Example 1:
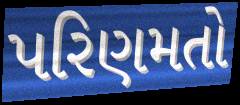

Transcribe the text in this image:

પરિણમતો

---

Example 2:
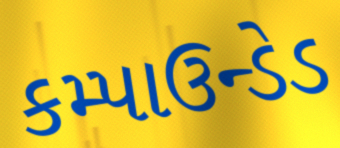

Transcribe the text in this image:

કમ્પાઉન્ડેડ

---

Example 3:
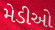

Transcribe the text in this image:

મેડીઓ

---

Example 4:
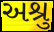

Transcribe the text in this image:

અશ્રુ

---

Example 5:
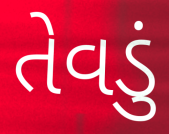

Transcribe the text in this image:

તેવડું